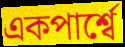
একপার্শ্বে